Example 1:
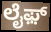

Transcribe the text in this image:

ಲೈಫ಼್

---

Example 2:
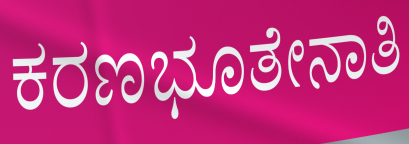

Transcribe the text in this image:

ಕರಣಭೂತೇನಾತಿ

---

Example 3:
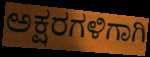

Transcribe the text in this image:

ಅಕ್ಷರಗಳಿಗಾಗಿ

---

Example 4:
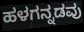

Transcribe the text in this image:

ಹಳಗನ್ನಡವು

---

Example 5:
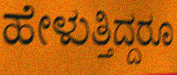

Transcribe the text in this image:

ಹೇಳುತ್ತಿದ್ದರೂ